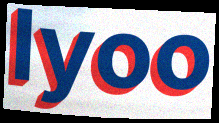
lyoo